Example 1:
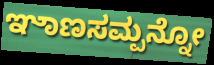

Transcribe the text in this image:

ಞಾಣಸಮ್ಪನ್ನೋ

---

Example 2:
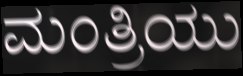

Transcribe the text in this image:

ಮಂತ್ರಿಯು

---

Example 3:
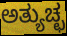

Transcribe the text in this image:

ಅತ್ಯುಚ್ಛ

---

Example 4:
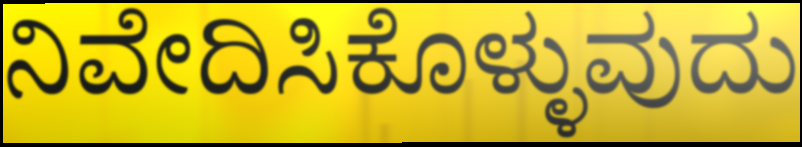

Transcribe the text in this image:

ನಿವೇದಿಸಿಕೊಳ್ಳುವುದು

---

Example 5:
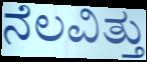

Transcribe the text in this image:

ನೆಲವಿತ್ತು